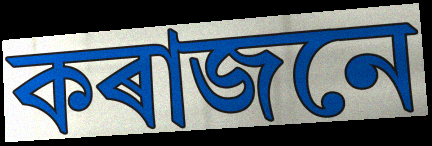
কৰাজনে